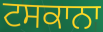
ਟਸਕਾਨਾ